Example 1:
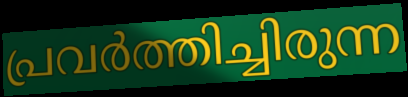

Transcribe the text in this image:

പ്രവർത്തിച്ചിരുന്ന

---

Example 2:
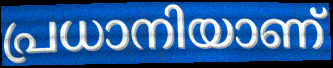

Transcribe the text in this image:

പ്രധാനിയാണ്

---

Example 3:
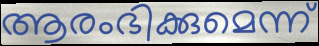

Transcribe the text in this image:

ആരംഭിക്കുമെന്ന്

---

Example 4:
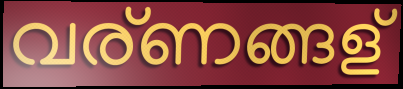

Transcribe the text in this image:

വര്ണങ്ങള്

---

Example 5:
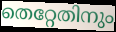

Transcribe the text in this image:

തെറ്റേതിനും